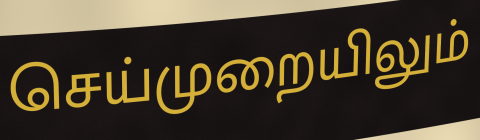
செய்முறையிலும்